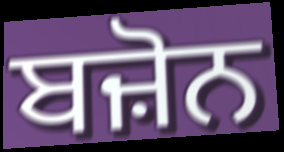
ਬਜ਼ੋਨ